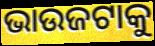
ଭାଉଜଟାକୁ